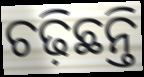
ଚଢ଼ିଛନ୍ତି